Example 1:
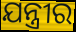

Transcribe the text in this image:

ଯନ୍ତ୍ରୀର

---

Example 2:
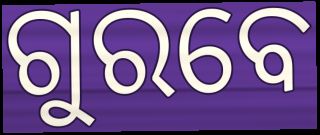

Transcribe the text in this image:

ଗୁରବେ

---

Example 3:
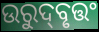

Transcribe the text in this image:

ଉରୁଦ୍‌ବୃତ୍ତଂ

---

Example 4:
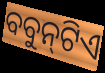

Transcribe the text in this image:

ବବୁନ୍‍ଟିଏ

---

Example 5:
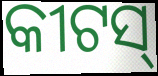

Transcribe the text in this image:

କୀଟସ୍